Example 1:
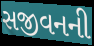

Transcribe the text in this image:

સજીવનની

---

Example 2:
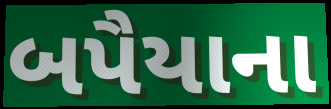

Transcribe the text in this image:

બપૈયાના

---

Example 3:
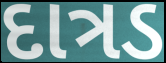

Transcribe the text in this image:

દાત્રડ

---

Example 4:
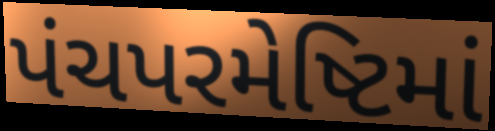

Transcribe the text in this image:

પંચપરમેષ્ટિમાં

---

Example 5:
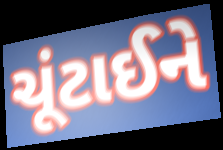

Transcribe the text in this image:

ચૂંટાઈને